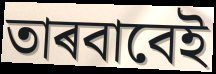
তাৰবাবেই